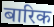
बारिक